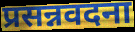
प्रसन्नवदना